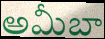
అమీబా